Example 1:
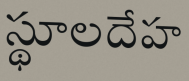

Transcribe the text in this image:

స్థూలదేహ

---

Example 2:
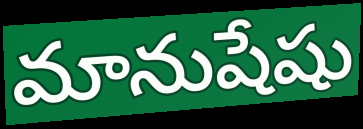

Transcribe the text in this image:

మానుషేషు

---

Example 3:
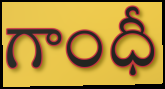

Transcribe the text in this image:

గాంధీ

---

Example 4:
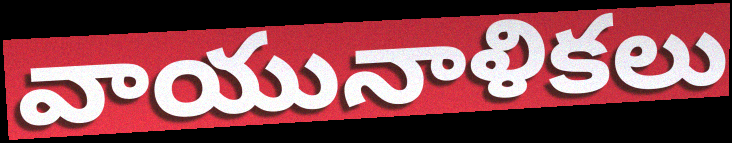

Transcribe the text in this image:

వాయునాళికలు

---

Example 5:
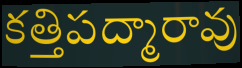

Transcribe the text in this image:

కత్తిపద్మారావు